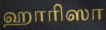
ஹாரிஸா